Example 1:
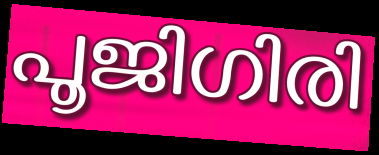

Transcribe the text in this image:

പൂജിഗിരി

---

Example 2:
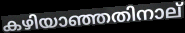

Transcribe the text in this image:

കഴിയാഞ്ഞതിനാല്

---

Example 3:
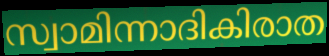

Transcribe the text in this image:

സ്വാമിന്നാദികിരാത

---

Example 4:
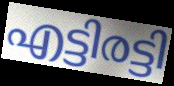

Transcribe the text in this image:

എട്ടിരട്ടി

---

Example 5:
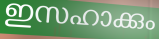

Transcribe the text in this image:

ഇസഹാക്കും